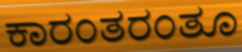
ಕಾರಂತರಂತೂ